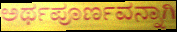
ಅರ್ಥಪೂರ್ಣವನ್ನಾಗಿ